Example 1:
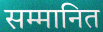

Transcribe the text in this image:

सम्मानित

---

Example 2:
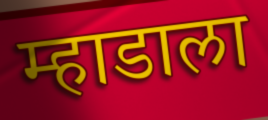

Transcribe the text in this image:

म्हाडाला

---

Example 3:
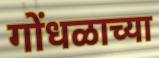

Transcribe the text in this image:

गोंधळाच्या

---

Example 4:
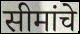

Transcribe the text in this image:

सीमांचे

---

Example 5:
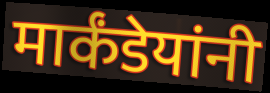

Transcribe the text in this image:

मार्कंडेयांनी